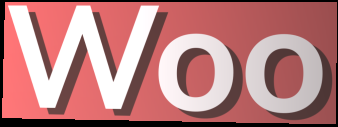
Woo